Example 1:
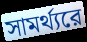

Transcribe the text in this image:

সামর্থ্যরে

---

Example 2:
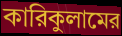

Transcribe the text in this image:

কারিকুলামের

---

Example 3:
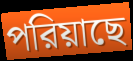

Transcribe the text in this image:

পরিয়াছে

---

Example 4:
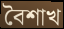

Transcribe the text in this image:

বৈশাখ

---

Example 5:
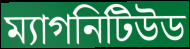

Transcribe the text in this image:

ম্যাগনিটিউড